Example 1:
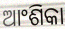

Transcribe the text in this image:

ଆଂଶିକା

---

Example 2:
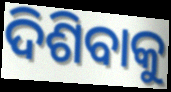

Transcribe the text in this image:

ଦିଶିବାକୁ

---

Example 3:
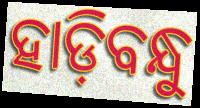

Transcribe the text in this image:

ହାଡ଼ିବନ୍ଧୁ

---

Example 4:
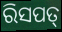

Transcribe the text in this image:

ରିସପତ୍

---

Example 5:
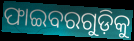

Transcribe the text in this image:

ଫାଇବରଗୁଡ଼ିକୁ